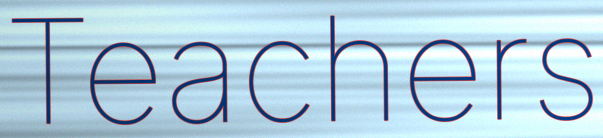
Teachers